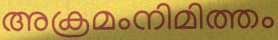
അക്രമംനിമിത്തം